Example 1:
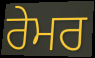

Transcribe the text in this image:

ਰੇਮਰ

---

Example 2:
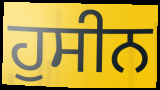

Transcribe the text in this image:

ਹੁਸੀਨ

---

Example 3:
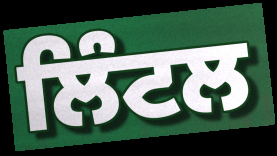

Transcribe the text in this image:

ਲਿੰਟਲ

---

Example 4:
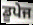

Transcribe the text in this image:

ਡੂਪੇਜ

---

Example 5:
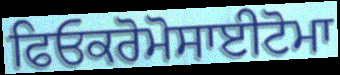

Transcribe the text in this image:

ਫਿਓਕਰੋਮੋਸਾਈਟੋਮਾ